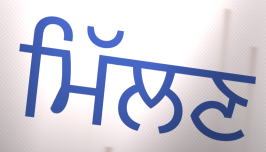
ਮਿੱਲਣ